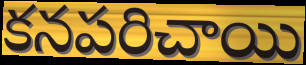
కనపరిచాయి